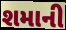
શમાની